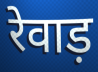
रेवाड़